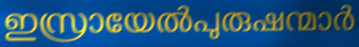
ഇസ്രായേൽപുരുഷന്മാർ